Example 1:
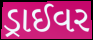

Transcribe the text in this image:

ડ્રાઈવર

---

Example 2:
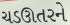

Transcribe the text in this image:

ચડઊતરને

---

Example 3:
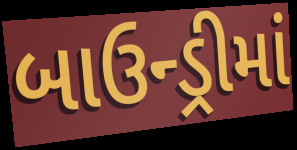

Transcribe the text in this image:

બાઉન્ડ્રીમાં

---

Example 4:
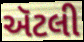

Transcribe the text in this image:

ઍટલી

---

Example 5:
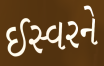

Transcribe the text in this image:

ઈસ્વરને